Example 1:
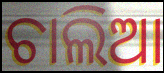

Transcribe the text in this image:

ଚାଲିଆ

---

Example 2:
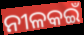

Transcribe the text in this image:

ନୀଳକଇଁ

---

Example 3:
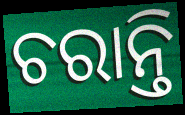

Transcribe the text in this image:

ଚରାନ୍ତି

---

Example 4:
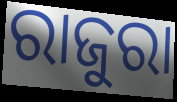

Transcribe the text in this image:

ରାଜୁରା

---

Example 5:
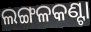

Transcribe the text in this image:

ଲଙ୍ଗଳକଣ୍ଟା